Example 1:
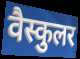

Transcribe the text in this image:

वैस्कुलर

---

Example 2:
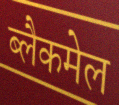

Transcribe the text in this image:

ब्लैकमेल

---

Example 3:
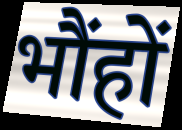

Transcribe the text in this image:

भौंहों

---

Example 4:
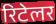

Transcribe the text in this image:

रिटेलर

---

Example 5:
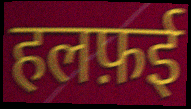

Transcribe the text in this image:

हलफ़ई